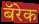
बॅरेक